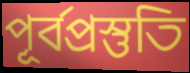
পূর্বপ্রস্তুতি